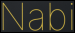
Nabi